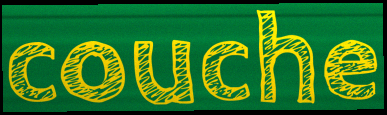
couche